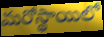
మరోస్థాయిలో